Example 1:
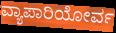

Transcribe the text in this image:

ವ್ಯಾಪಾರಿಯೋರ್ವ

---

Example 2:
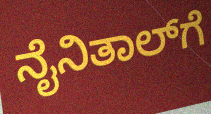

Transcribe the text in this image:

ನೈನಿತಾಲ್‌ಗೆ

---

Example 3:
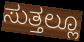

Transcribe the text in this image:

ಸುತ್ತಲ್ಲೂ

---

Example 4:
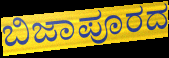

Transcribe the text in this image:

ಬಿಜಾಪೂರದ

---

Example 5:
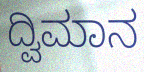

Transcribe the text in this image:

ದ್ವಿಮಾನ